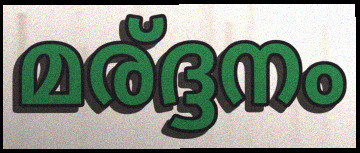
മര്ദ്ദനം